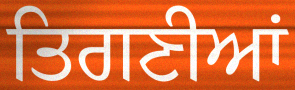
ਤਿਗਣੀਆਂ